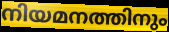
നിയമനത്തിനും